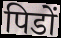
पिडों